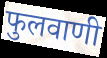
फुलवाणी